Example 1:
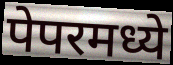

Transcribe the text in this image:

पेपरमध्ये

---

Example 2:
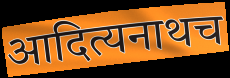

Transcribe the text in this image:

आदित्यनाथच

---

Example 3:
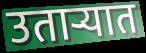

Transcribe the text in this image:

उताऱ्यात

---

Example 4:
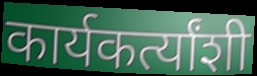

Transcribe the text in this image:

कार्यकर्त्यांशी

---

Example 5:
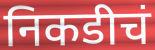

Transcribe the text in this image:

निकडीचं